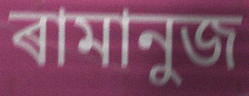
ৰামানুজ